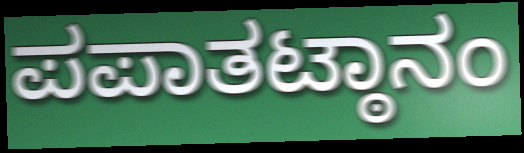
ಪಪಾತಟ್ಠಾನಂ